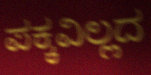
ಪಕ್ಕವಿಲ್ಲದ